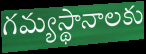
గమ్యస్థానాలకు